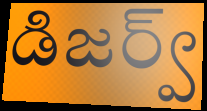
డిజర్వ్